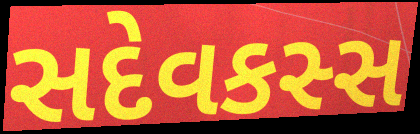
સદેવકસ્સ